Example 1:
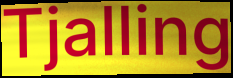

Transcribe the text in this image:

Tjalling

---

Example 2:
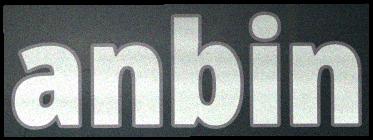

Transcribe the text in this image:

anbin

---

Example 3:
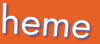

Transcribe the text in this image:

heme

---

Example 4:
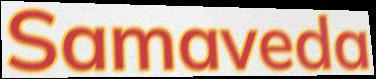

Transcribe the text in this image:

Samaveda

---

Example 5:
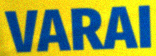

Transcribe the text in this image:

VARAI